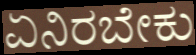
ಏನಿರಬೇಕು